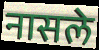
नासले